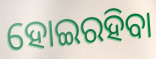
ହୋଇରହିବା